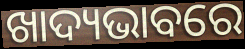
ଖାଦ୍ୟଭାବରେ